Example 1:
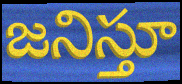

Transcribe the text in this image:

జనిస్తూ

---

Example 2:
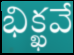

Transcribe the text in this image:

భిక్ఖవే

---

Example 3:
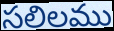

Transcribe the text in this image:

సలిలము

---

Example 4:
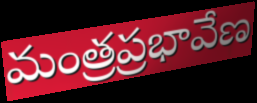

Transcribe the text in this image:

మంత్రప్రభావేణ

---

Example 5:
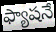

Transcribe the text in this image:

ఫ్యాషనే